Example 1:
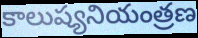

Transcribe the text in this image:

కాలుష్యనియంత్రణ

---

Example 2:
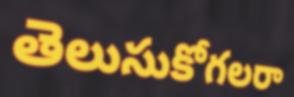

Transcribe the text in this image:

తెలుసుకోగలరా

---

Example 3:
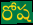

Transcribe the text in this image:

రోష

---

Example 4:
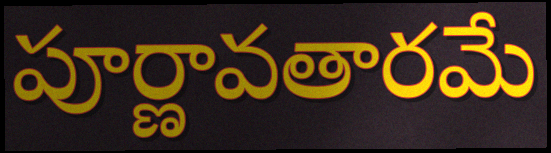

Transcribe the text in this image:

పూర్ణావతారమే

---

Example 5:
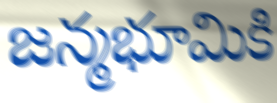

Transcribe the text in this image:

జన్మభూమికి